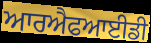
ਆਰਐਫਆਈਡੀ